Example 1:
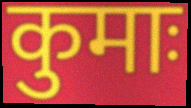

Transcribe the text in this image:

कुमाः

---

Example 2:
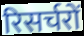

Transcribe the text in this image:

रिसर्चरों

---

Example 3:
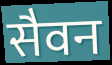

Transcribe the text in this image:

सैवन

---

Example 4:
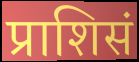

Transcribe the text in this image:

प्राशिसं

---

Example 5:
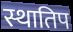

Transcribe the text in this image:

स्थातिप